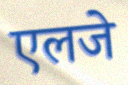
एलजे